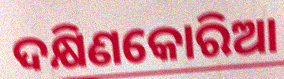
ଦକ୍ଷିଣକୋରିଆ